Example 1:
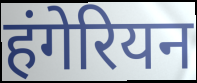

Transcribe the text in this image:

हंगेरियन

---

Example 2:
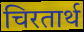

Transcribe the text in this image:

चिरतार्थ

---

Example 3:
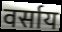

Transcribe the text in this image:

वर्साय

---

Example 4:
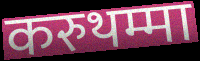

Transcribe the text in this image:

करुथम्मा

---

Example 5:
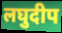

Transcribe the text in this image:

लघुदीप